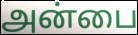
அன்பை